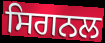
ਸਿਗਨਲ